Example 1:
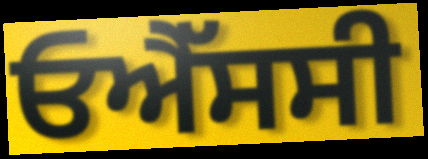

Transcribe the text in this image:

ਓਐੱਸਸੀ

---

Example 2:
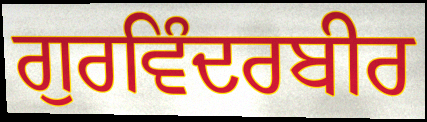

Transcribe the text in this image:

ਗੁਰਵਿੰਦਰਬੀਰ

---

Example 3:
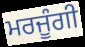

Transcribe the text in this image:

ਮਰਜੂੰਗੀ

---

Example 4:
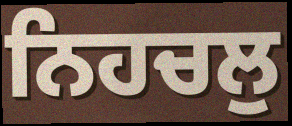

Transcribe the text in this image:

ਨਿਹਚਲੁ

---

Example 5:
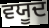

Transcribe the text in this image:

ਵਯੂਦ